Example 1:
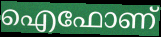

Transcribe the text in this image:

ഐഫോണ്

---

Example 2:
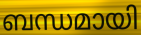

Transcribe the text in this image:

ബന്ധമായി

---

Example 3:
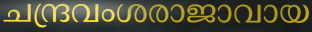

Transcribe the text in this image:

ചന്ദ്രവംശരാജാവായ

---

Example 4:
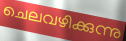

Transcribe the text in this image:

ചെലവഴിക്കുന്നു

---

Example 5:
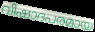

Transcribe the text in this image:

വിഷാദപരമായ